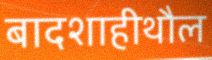
बादशाहीथौल